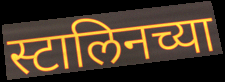
स्टालिनच्या